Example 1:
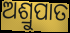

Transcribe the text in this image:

ଅଶ୍ରୁପାତ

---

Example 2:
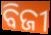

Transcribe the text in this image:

ବିଜୀ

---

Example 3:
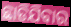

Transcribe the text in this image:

ଛାଡିଯିବାର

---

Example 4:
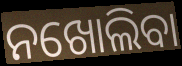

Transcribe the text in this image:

ନଖୋଲିବା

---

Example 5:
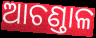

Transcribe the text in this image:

ଆଚଣ୍ଡାଳ